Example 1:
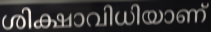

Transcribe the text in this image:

ശിക്ഷാവിധിയാണ്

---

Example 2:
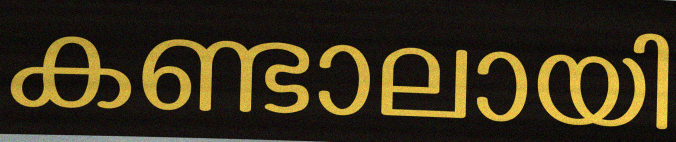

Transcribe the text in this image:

കണ്ടാലായി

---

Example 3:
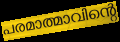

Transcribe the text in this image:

പരമാത്മാവിന്റെ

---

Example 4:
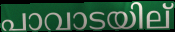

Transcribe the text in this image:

പാവാടയില്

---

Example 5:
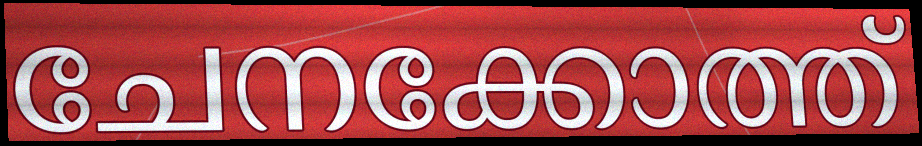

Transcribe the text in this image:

ചേനക്കോത്ത്